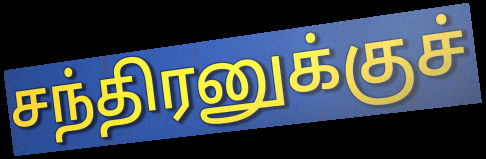
சந்திரனுக்குச்